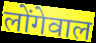
लोंगेवाल